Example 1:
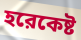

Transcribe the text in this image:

হরেকেষ্ট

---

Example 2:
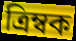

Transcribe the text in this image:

ত্রিম্বক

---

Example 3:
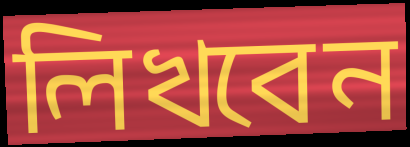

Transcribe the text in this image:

লিখবেন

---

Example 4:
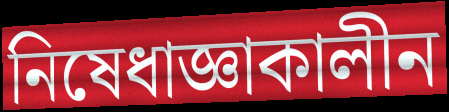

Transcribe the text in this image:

নিষেধাজ্ঞাকালীন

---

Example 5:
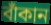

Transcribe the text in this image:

বাঁকান